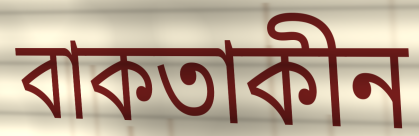
বাকতাকীন